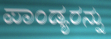
ಪಾಂಡ್ಯರನ್ನು